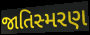
જાતિસ્મરણ